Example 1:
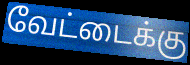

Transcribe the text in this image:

வேட்டைக்கு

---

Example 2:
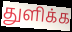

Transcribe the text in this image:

துளிக்க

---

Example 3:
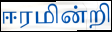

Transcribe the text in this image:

ஈரமின்றி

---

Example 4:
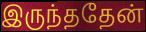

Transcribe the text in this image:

இருந்ததேன்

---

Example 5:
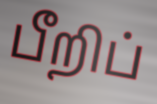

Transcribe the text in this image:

பீறிப்